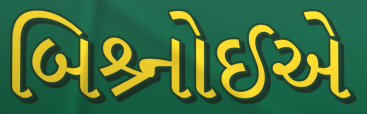
બિશ્ર્નોઈએ